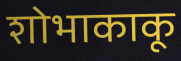
शोभाकाकू